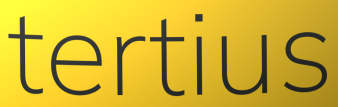
tertius